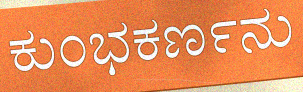
ಕುಂಭಕರ್ಣನು